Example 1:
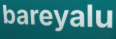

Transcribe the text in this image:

bareyalu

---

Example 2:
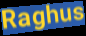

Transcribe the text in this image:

Raghus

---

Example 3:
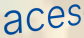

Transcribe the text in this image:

aces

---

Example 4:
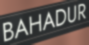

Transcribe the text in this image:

BAHADUR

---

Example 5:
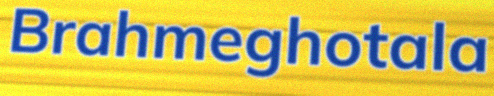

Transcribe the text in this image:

Brahmeghotala